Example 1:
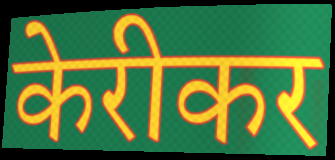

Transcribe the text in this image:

केरीकर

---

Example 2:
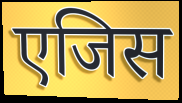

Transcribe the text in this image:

एजिस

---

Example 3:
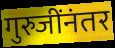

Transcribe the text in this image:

गुरुजींनंतर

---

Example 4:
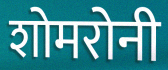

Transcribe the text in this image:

शोमरोनी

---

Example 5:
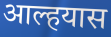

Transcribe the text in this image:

आल्हयास